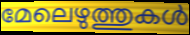
മേലെഴുത്തുകൾ